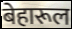
बेहारूल